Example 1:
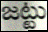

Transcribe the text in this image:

జట్టు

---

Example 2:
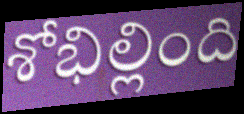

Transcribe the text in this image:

శోభిల్లింది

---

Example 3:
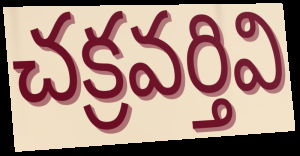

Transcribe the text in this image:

చక్రవర్తివి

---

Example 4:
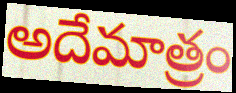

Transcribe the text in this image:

అదేమాత్రం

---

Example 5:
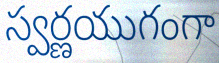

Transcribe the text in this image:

స్వర్ణయుగంగా